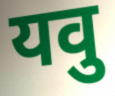
यवु